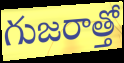
గుజరాత్తో